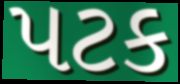
પટક